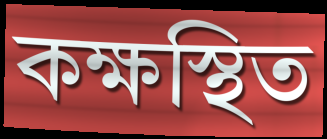
কক্ষস্থিত